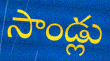
సాండ్లు